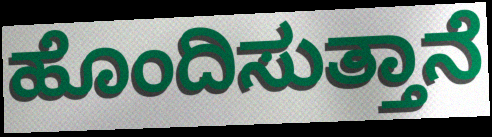
ಹೊಂದಿಸುತ್ತಾನೆ